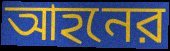
আহনের